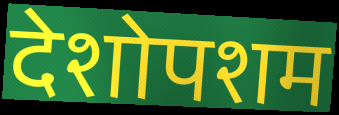
देशोपशम